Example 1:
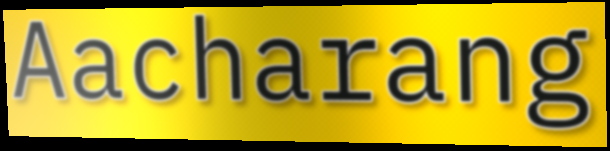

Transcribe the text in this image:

Aacharang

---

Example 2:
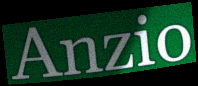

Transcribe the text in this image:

Anzio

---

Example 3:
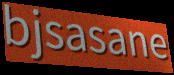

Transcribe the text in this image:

bjsasane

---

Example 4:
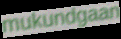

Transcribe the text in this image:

mukundgaan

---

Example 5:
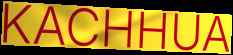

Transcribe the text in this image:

KACHHUA